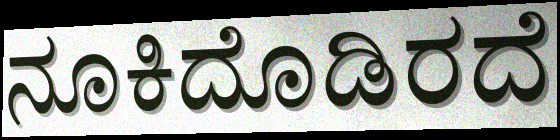
ನೂಕಿದೊಡಿರದೆ